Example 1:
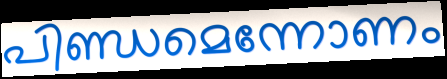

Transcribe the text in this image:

പിണ്ഡമെന്നോണം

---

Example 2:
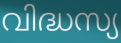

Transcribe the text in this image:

വിദ്ധസ്യ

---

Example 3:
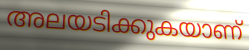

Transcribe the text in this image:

അലയടിക്കുകയാണ്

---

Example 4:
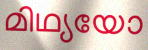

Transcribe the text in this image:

മിഥ്യയോ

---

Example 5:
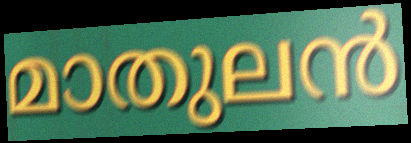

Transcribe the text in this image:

മാതുലൻ